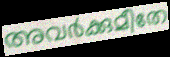
അവർക്കുമീതേ